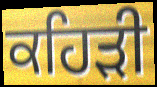
ਕਹਿੜੀ